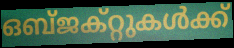
ഒബ്ജക്റ്റുകൾക്ക്